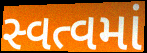
સ્વત્વમાં